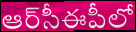
ఆర్‌సీఈపీలో